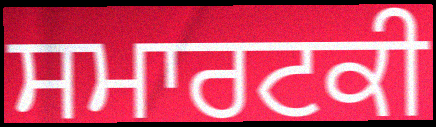
ਸਮਾਰਟਕੀ